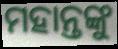
ମହାନ୍ତଙ୍କୁ